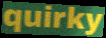
quirky